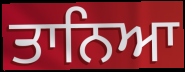
ਤਾਨਿਆ